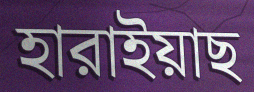
হারাইয়াছ